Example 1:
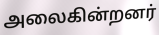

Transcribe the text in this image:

அலைகின்றனர்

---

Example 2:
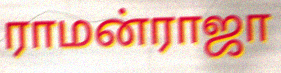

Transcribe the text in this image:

ராமன்ராஜா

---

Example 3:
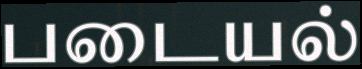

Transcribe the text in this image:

படையல்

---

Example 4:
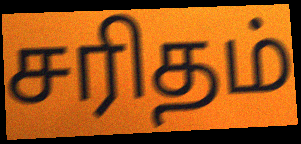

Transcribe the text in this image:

சரிதம்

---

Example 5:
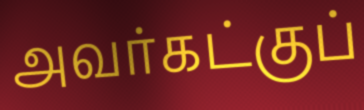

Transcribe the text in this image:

அவர்கட்குப்